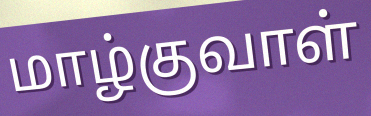
மாழ்குவாள்